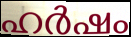
ഹർഷം